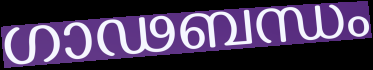
ഗാഢബന്ധം